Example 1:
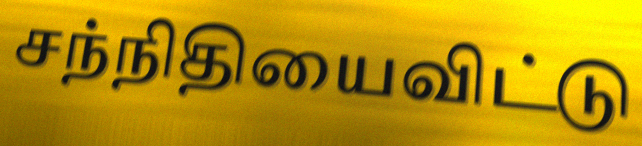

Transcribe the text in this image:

சந்நிதியைவிட்டு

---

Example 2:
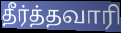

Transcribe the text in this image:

தீர்த்தவாரி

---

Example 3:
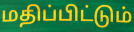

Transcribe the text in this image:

மதிப்பிட்டும்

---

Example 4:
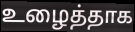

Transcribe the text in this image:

உழைத்தாக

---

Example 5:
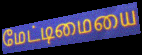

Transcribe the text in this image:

மேட்டிமையை